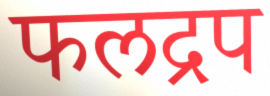
फलद्रप